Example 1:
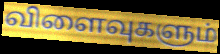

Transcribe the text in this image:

விளைவுகளும்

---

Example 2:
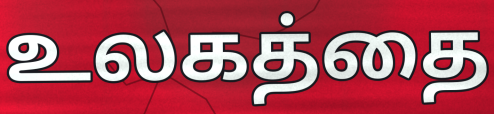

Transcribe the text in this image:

உலகத்தை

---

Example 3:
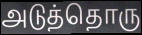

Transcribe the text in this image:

அடுத்தொரு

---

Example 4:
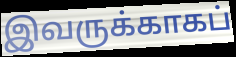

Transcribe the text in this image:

இவருக்காகப்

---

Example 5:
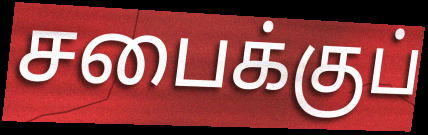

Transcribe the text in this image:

சபைக்குப்